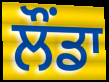
ਲੌਂਡਾ